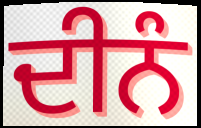
ਦੀਨੰ